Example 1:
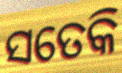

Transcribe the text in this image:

ସତେକି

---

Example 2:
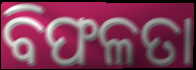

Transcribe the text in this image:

ବିଫଳତା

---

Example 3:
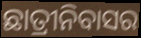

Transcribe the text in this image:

ଛାତ୍ରୀନିବାସର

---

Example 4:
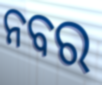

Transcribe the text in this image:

ନବର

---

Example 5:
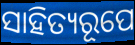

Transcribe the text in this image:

ସାହିତ୍ୟରୂପେ